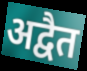
अद्वैत